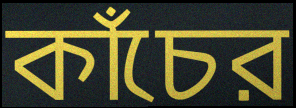
কাঁচের